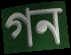
গন